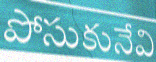
పోసుకునేవి